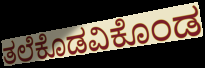
ತಲೆಕೊಡವಿಕೊಂಡ